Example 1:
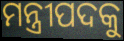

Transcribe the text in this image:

ମନ୍ତ୍ରୀପଦକୁ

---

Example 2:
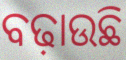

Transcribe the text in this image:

ବଢ଼ାଉଛି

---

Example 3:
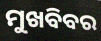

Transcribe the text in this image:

ମୁଖବିବର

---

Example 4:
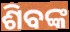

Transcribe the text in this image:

ଶିବଙ୍କ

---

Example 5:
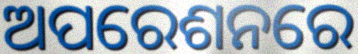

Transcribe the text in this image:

ଅପରେଶନରେ